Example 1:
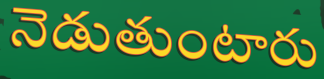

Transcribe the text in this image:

నెడుతుంటారు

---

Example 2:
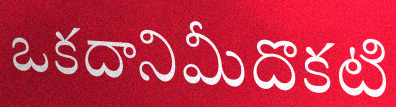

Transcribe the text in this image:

ఒకదానిమీదొకటి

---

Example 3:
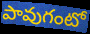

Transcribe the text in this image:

పావుగంటో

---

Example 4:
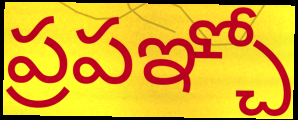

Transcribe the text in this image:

ప్రపఞ్చో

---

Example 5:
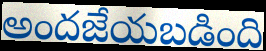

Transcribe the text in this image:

అందజేయబడింది